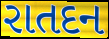
રાતદન